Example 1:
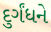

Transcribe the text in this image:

દુર્ગંધને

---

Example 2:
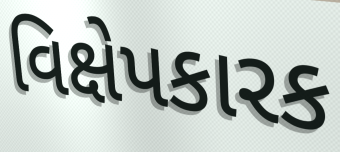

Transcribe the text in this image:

વિક્ષેપકારક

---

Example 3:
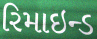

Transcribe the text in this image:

રિમાઇન્ડ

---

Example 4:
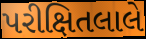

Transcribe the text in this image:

પરીક્ષિતલાલે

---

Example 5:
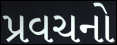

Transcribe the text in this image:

પ્રવચનો